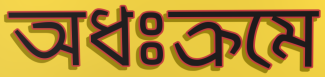
অধঃক্রমে